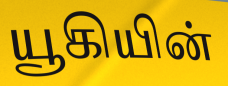
யூகியின்